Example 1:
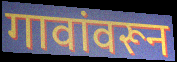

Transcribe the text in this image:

गावांवरून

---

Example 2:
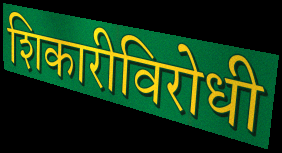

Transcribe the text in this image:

शिकारीविरोधी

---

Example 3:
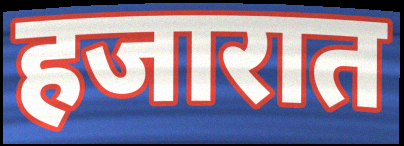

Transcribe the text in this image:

हजारात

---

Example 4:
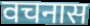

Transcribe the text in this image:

वचनास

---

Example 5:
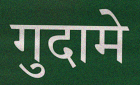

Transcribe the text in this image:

गुदामे